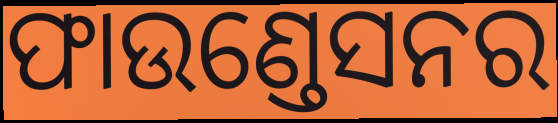
ଫାଉଣ୍ଡେସନର